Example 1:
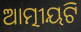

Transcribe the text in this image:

ଆତ୍ମୀୟଟି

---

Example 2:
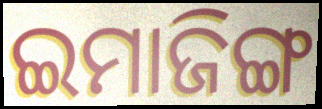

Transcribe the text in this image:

ଇମାଜିଙ୍ଗ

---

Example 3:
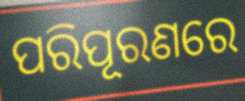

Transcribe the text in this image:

ପରିପୂରଣରେ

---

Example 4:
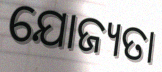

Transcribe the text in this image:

ଯୋଜ୍ୟତା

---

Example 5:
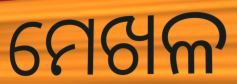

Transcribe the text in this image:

ମେଖଳ